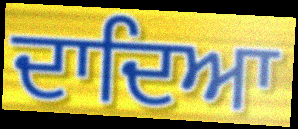
ਦਾਦਿਆ